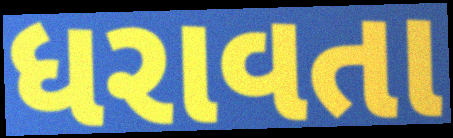
ધરાવતા